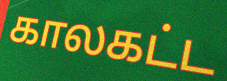
காலகட்ட